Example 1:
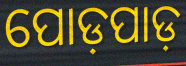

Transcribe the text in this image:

ପୋଡ଼ପାଡ଼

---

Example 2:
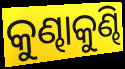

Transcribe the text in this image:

କୁଣ୍ଢାକୁଣ୍ଢି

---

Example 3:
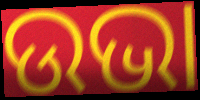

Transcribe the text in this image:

ଉଭା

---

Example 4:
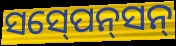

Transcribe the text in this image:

ସସ୍‍ପେନ୍‍ସନ୍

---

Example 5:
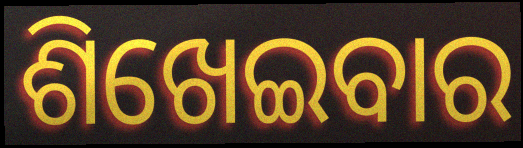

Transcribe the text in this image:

ଶିଖେଇବାର